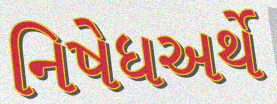
નિષેધઅર્થે